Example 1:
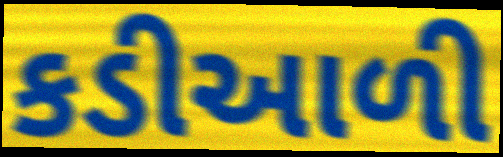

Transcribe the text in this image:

કડીઆળી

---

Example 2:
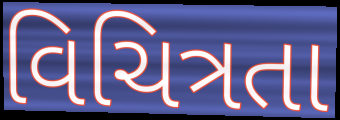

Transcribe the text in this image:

વિચિત્રતા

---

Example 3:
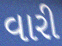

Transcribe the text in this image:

વારી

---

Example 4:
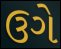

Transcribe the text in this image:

ઉગે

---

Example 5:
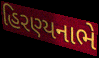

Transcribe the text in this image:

હિરણ્યનાભે